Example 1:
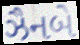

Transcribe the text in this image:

ઝૈનબે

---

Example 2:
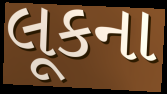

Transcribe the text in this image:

લૂકના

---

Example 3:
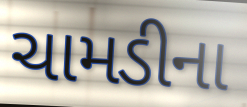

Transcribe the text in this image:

ચામડીના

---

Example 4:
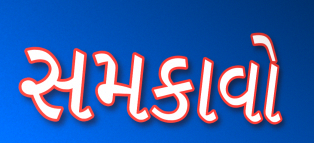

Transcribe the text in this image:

સમકાવો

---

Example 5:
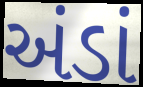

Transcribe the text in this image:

અંડાં